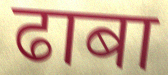
ढाबा